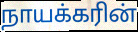
நாயக்கரின்